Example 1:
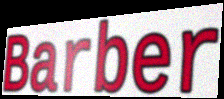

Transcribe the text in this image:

Barber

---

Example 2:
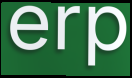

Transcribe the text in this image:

erp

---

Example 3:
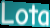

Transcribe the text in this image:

Lota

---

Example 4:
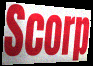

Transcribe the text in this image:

Scorp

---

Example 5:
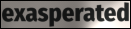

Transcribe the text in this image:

exasperated